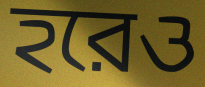
হরেও